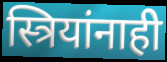
स्त्रियांनाही